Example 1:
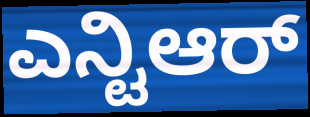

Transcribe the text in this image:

ಎನ್ಟಿಆರ್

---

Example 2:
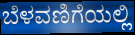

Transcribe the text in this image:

ಬೆಳವಣಿಗೆಯಲ್ಲಿ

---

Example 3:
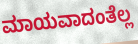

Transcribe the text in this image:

ಮಾಯವಾದಂತೆಲ್ಲ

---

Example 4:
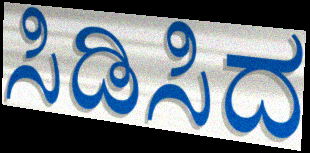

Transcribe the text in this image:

ಸಿಡಿಸಿದ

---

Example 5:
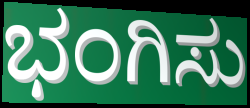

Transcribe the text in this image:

ಭಂಗಿಸು